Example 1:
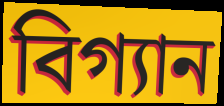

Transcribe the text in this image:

বিগ্যান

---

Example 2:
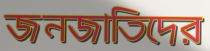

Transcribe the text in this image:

জনজাতিদের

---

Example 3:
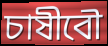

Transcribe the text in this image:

চাষীবৌ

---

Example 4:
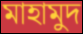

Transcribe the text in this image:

মাহামুদ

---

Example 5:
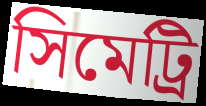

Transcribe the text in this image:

সিমেট্রি